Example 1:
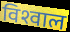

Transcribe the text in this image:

विश्वाल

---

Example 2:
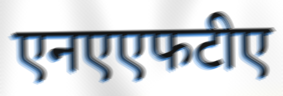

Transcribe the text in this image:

एनएएफटीए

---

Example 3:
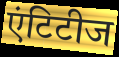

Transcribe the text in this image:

एंटिटीज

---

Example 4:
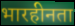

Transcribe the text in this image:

भारहीनता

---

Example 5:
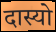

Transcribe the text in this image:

दास्यो